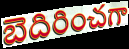
బెదిరించగా